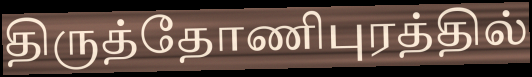
திருத்தோணிபுரத்தில்